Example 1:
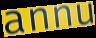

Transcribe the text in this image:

annu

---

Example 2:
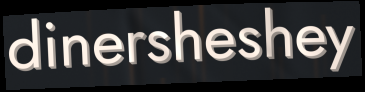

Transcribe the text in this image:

dinersheshey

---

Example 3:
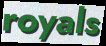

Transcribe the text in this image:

royals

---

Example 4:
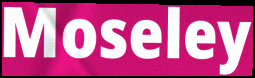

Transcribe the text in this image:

Moseley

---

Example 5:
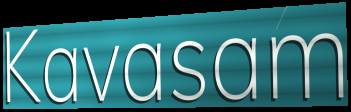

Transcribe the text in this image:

Kavasam